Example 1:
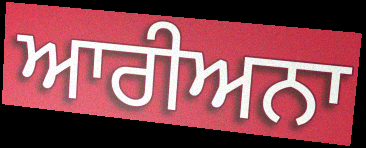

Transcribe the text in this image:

ਆਰੀਅਨਾ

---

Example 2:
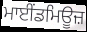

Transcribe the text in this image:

ਮਾਈਂਡਮਿਊਜ਼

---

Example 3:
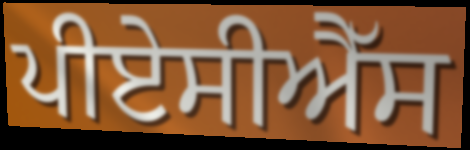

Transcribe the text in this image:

ਪੀਏਸੀਐੱਸ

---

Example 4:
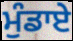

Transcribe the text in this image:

ਮੁੰਡਾਏ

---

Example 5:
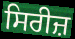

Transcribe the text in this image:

ਸਿਰੀਜ਼